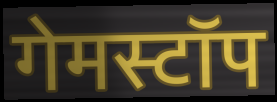
गेमस्टॉप